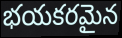
భయకరమైన